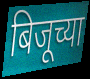
बिजूच्या